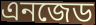
এনজেড